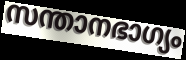
സന്താനഭാഗ്യം